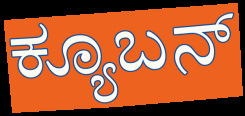
ಕ್ಯೂಬನ್